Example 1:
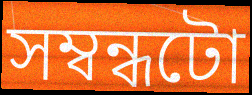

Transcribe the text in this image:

সম্বন্ধটো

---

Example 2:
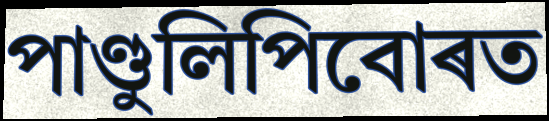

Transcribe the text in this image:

পাণ্ডুলিপিবোৰত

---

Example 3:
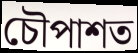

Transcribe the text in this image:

চৌপাশত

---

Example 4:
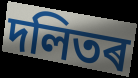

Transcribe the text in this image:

দলিতৰ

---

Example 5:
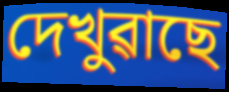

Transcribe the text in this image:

দেখুৱাছে